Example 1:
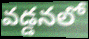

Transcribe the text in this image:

వడ్డనలో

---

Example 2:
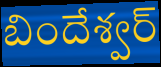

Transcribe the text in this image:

బిందేశ్వర్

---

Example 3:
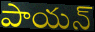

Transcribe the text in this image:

పాయన్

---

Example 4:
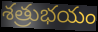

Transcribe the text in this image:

శత్రుభయం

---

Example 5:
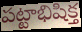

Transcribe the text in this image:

పట్టాభిషిక్త